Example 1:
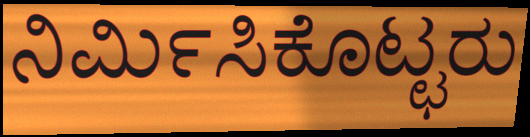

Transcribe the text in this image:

ನಿರ್ಮಿಸಿಕೊಟ್ಟರು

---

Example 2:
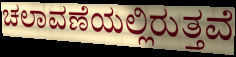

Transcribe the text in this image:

ಚಲಾವಣೆಯಲ್ಲಿರುತ್ತವೆ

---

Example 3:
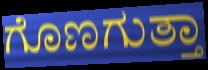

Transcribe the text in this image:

ಗೊಣಗುತ್ತಾ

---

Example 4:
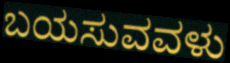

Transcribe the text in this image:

ಬಯಸುವವಳು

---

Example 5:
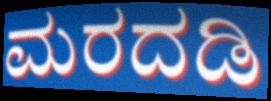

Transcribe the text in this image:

ಮರದಡಿ